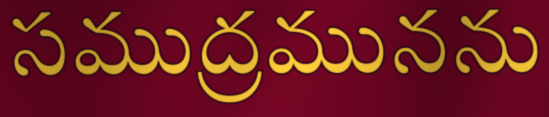
సముద్రమునను